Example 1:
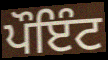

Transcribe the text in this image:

ਪੌਇੰਟ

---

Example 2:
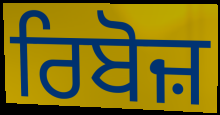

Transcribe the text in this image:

ਰਿਬੋਜ਼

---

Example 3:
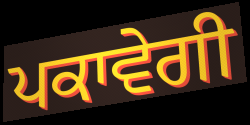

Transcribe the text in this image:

ਪਕਾਵੇਗੀ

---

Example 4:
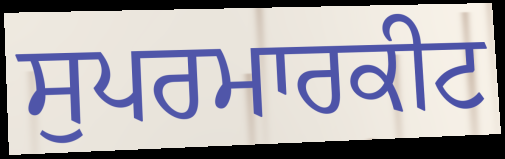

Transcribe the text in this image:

ਸੁਪਰਮਾਰਕੀਟ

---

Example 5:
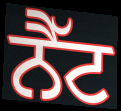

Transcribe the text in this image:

ਨੈੱਟ